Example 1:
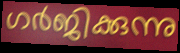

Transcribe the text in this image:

ഗർജിക്കുന്നു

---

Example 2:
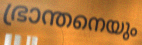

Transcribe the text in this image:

ഭ്രാന്തനെയും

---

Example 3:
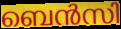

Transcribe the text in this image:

ബെൻസി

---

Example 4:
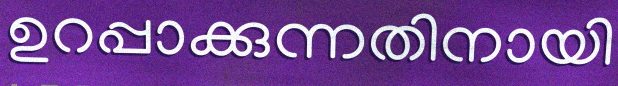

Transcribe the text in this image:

ഉറപ്പാക്കുന്നതിനായി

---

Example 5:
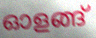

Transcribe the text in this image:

ഓളങ്ങ്